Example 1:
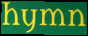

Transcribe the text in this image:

hymn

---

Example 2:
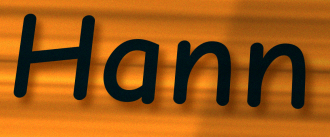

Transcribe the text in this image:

Hann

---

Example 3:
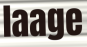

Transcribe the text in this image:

laage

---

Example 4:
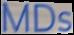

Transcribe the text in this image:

MDs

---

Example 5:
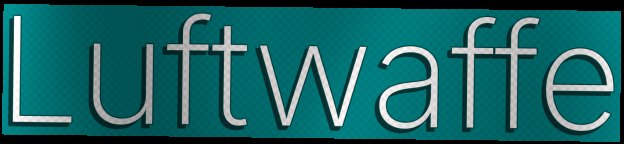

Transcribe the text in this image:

Luftwaffe